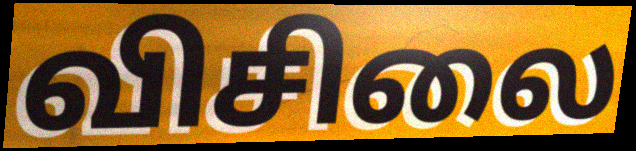
விசிலை